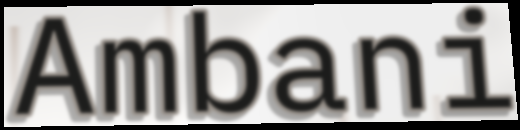
Ambani